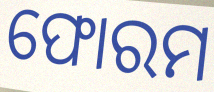
ଫୋରମ